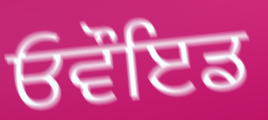
ਓਵੌਇਡ